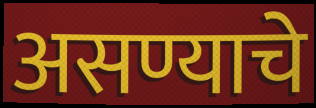
असण्याचे